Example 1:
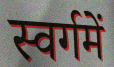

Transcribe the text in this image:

स्वर्गमें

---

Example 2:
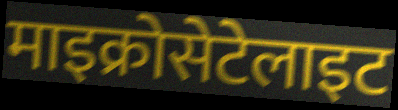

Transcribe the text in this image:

माइक्रोसेटेलाइट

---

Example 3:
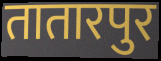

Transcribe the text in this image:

तातारपुर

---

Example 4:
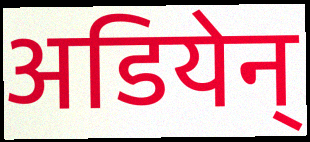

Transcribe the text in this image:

अडियेन्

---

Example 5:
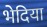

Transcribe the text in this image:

भेदिया